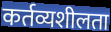
कर्तव्यशीलता